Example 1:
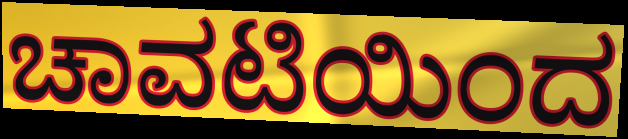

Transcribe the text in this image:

ಚಾವಟಿಯಿಂದ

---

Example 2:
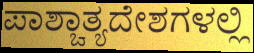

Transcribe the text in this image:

ಪಾಶ್ಚಾತ್ಯದೇಶಗಳಲ್ಲಿ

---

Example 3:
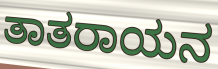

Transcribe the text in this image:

ತಾತರಾಯನ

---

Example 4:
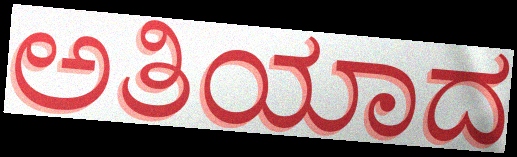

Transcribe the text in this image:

ಅತಿಯಾದ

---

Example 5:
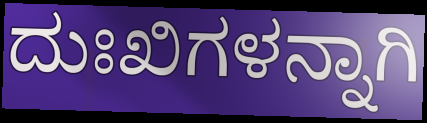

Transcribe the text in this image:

ದುಃಖಿಗಳನ್ನಾಗಿ